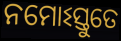
ନମୋଽସ୍ତୁତେ